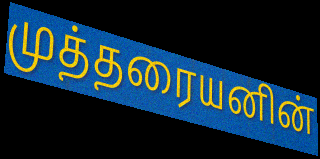
முத்தரையனின்